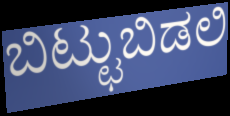
ಬಿಟ್ಟುಬಿಡಲಿ